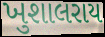
ખુશાલરાય